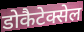
डोकैटेक्सेल